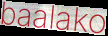
baalako